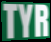
TYR